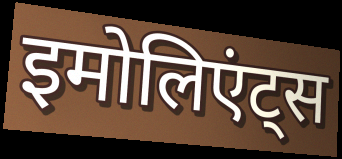
इमोलिएंट्स